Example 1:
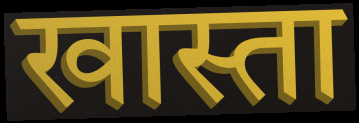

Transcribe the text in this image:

खास्ता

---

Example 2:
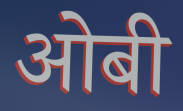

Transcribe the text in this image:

ओबी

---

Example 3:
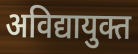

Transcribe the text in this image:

अविद्यायुक्त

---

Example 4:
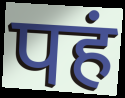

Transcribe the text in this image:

पहं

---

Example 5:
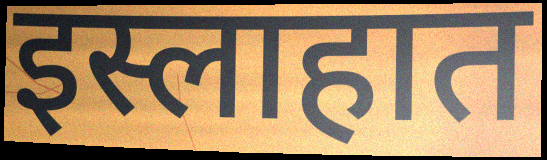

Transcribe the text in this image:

इस्लाहात